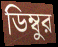
ডিম্বুর